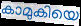
കാമുകിയെ